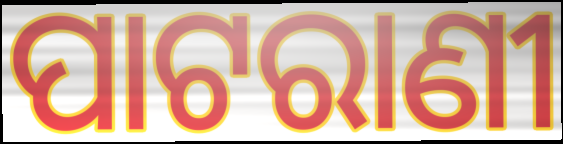
ପାଟରାଣୀ